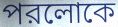
পরলোকে